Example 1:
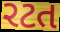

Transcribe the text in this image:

રટત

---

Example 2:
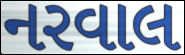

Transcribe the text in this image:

નરવાલ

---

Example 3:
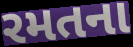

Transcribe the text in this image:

રમતના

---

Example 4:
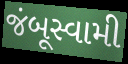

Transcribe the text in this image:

જંબૂસ્વામી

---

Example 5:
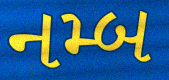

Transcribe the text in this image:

નમ્બ